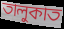
তালুকাত